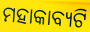
ମହାକାବ୍ୟଟି